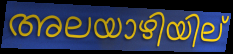
അലയാഴിയില്